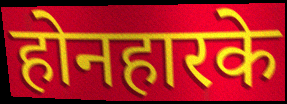
होनहारके